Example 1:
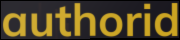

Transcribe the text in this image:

authorid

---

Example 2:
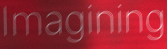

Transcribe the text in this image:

Imagining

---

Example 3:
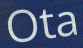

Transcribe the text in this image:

Ota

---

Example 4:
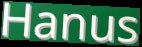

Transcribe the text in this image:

Hanus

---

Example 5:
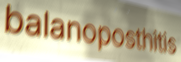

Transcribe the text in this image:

balanoposthitis